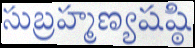
సుబ్రహ్మణ్యషష్ఠి